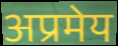
अप्रमेय